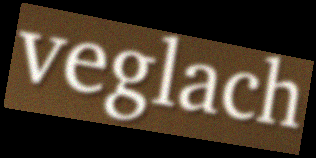
veglach